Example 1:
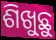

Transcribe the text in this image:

ଶିଖୁଛୁ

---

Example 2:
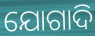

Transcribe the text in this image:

ଯୋଗାଦି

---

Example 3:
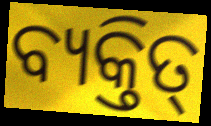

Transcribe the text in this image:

ବ୍ୟକ୍ତିତ୍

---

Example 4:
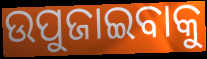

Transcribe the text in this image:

ଉପୁଜାଇବାକୁ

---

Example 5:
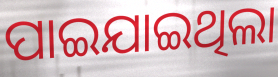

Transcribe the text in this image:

ପାଇଯାଇଥିଲା